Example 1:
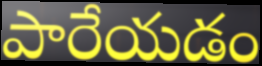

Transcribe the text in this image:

పారేయడం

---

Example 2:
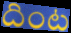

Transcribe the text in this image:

దింట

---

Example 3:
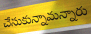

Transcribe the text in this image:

చేసుకున్నామన్నారు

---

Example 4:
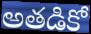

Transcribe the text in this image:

అతడికో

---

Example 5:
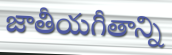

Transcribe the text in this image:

జాతీయగీతాన్ని